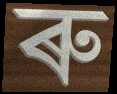
ৰু